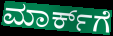
ಮಾರ್ಕ್‌ಗೆ